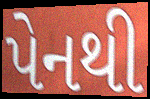
પેનથી